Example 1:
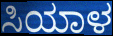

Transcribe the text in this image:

ಸಿಯಾಳ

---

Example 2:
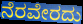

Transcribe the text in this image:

ನೆರವೇರದು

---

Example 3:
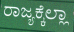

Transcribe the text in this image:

ರಾಜ್ಯಕ್ಕೆಲ್ಲಾ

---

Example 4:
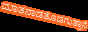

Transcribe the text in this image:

ಮಾತನಾಡತೊಡಗುತ್ತಾನೆ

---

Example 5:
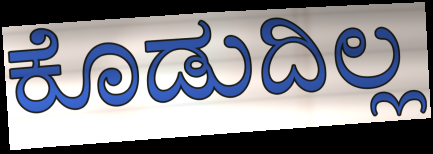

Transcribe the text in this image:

ಕೊಡುದಿಲ್ಲ